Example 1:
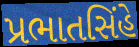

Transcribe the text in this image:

પ્રભાતસિંહે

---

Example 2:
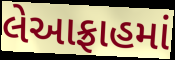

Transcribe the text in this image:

લેઆફ્રાહમાં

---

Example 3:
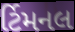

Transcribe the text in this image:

ર્ટિમનલ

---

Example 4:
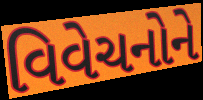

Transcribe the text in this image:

વિવેચનોને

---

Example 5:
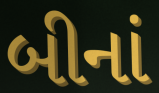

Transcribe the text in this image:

બીનાં